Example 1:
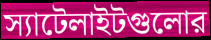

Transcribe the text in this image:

স্যাটেলাইটগুলোর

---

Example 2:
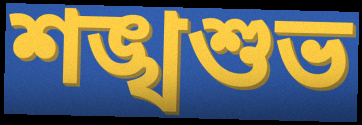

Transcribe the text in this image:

শঙ্খশুভ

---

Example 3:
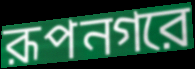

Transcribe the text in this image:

রূপনগরে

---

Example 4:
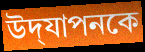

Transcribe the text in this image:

উদ্‌যাপনকে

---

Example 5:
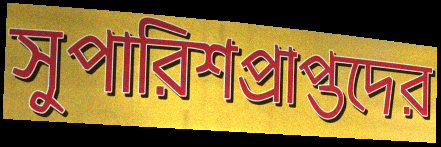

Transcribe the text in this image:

সুপারিশপ্রাপ্তদের